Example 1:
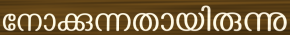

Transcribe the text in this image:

നോക്കുന്നതായിരുന്നു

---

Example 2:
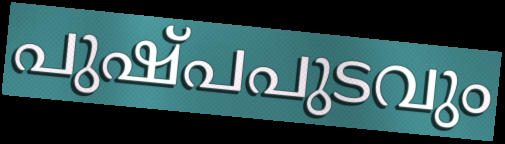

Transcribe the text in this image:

പുഷ്പപുടവും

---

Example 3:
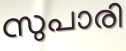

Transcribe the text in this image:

സുപാരി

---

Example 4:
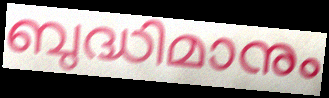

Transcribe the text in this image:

ബുദ്ധിമാനും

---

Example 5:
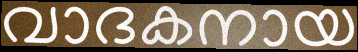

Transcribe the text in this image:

വാദകനായ